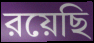
রয়েছি